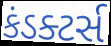
કંડક્ટર્સ